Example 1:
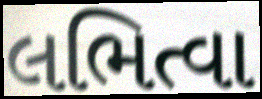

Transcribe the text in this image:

લભિત્વા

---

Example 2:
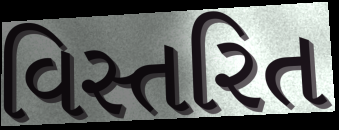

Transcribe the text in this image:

વિસ્તરિત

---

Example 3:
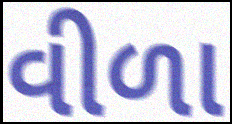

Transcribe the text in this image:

વીળા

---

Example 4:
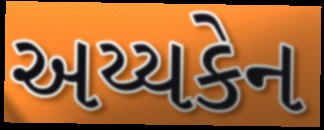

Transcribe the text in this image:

અય્યકેન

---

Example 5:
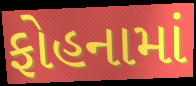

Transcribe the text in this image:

ફોહનામાં